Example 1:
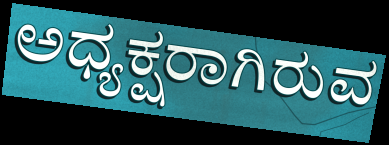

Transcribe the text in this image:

ಅಧ್ಯಕ್ಷರಾಗಿರುವ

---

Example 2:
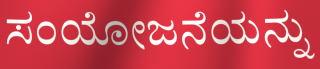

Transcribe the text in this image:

ಸಂಯೋಜನೆಯನ್ನು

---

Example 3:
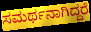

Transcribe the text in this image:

ಸಮರ್ಥನಾಗಿದ್ದರೆ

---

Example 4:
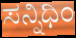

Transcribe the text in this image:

ಸನ್ನಿಧಿಂ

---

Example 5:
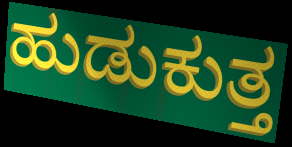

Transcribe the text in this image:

ಹುಡುಕುತ್ತ